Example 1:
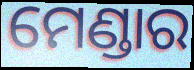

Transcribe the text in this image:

ମେଣ୍ଡାର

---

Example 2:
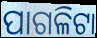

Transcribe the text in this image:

ପାଗଳିଟା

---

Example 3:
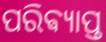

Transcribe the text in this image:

ପରିଵ୍ୟାପ୍ତ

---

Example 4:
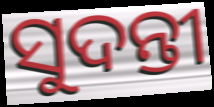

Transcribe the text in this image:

ସୁଦନ୍ତୀ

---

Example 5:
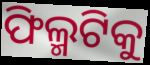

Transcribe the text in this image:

ଫିଲ୍ମଟିକୁ